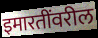
इमारतींवरील